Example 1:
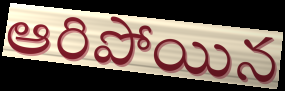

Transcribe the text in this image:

ఆరిపోయిన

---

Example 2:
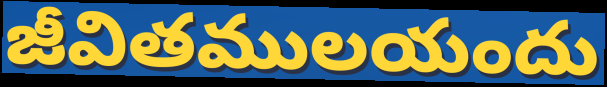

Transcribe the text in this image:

జీవితములయందు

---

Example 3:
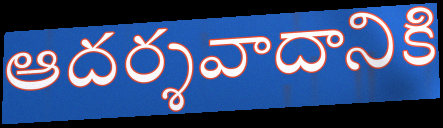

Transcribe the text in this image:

ఆదర్శవాదానికి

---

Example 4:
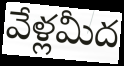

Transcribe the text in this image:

వేళ్లమీద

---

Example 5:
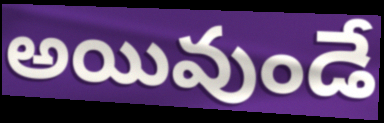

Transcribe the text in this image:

అయివుండే